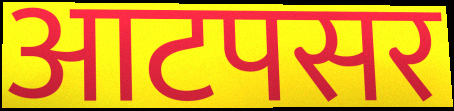
आटपसर